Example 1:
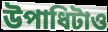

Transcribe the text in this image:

উপাধিটাও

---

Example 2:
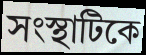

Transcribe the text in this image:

সংস্থাটিকে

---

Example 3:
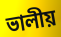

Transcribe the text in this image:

ভালীয়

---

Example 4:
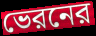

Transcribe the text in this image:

ভেরনের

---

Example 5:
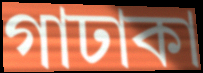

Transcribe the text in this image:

গাঢাকা